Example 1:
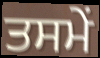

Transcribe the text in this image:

ਤਸਮੇਂ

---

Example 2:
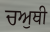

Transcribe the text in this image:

ਚਅੁਥੀ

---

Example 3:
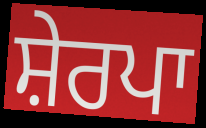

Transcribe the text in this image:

ਸ਼ੇਰਪਾ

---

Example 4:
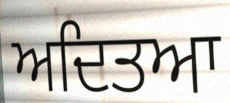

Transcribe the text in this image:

ਅਦਿਤਆ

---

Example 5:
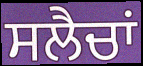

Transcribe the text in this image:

ਸਲੈਚਾਂ